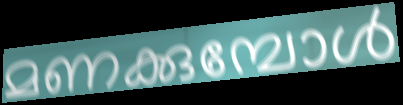
മണക്കുമ്പോൾ